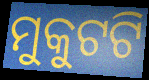
ମୁକୁଟଟି